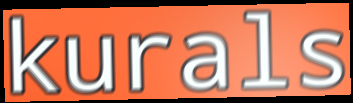
kurals